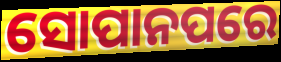
ସୋପାନପରେ